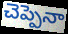
చెప్పెనా